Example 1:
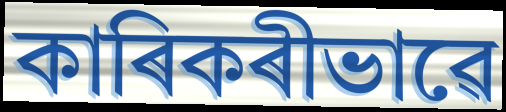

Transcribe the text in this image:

কাৰিকৰীভাৱে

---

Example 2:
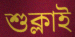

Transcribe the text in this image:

শুক্লাই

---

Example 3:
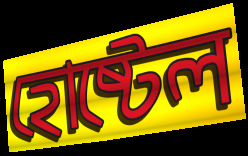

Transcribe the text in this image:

হোষ্টেল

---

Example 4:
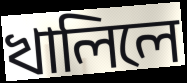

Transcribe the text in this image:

খালিলে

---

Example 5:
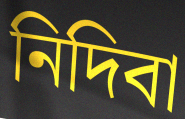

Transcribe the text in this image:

নিদিবা